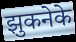
झुकनेके